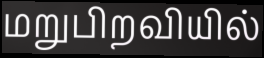
மறுபிறவியில்